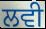
ਲਵੀ